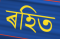
ৰহিত